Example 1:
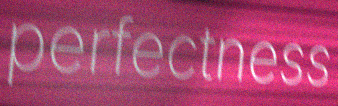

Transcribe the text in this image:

perfectness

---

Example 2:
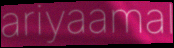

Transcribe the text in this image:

ariyaamal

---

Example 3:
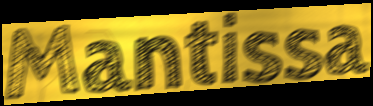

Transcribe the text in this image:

Mantissa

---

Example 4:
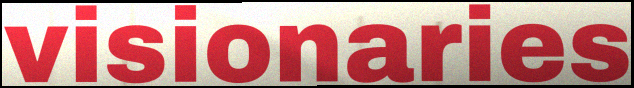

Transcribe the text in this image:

visionaries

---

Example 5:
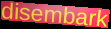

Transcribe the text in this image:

disembark